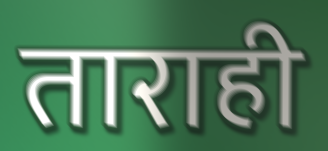
ताराही